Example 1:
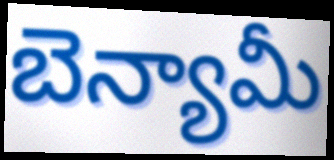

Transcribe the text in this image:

బెన్యామీ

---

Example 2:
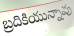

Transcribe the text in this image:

బ్రదికియున్నావు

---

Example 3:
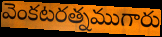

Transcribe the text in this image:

వెంకటరత్నముగారు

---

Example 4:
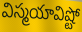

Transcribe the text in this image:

విస్మయావిష్టో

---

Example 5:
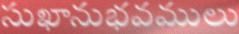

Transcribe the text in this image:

సుఖానుభవములు